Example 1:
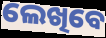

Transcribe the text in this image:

ଲେଖିବେ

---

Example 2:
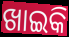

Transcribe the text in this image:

ଖାଇକି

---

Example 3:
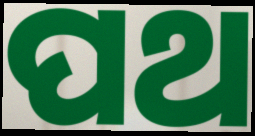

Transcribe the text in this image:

ପଥ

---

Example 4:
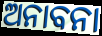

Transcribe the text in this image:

ଅନାବନା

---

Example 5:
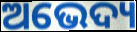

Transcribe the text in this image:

ଅଭେଦ୍ୟ